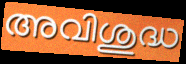
അവിശുദ്ധ